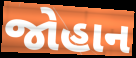
જોહાન